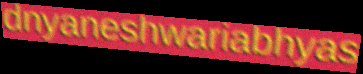
dnyaneshwariabhyas